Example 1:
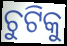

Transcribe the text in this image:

ଚୁଟିକୁ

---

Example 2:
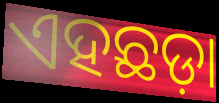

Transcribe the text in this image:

ଏହଛଡ଼ା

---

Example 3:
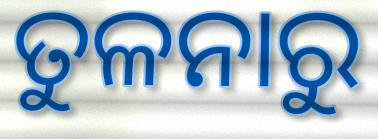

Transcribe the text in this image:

ତୁଳନାରୁ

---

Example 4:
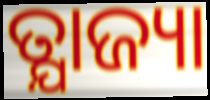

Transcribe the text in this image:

ତ୍ଯାଜ୍ୟା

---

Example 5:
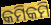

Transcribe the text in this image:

କମିକମି